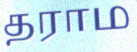
தராம